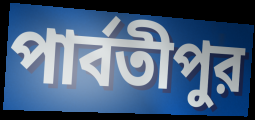
পার্বতীপুর